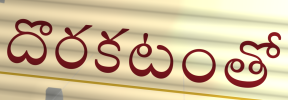
దొరకటంతో